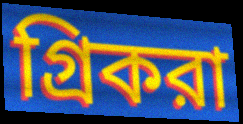
গ্রিকরা